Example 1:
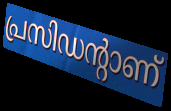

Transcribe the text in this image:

പ്രസിഡന്റാണ്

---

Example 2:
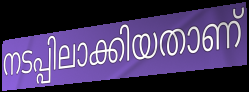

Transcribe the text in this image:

നടപ്പിലാക്കിയതാണ്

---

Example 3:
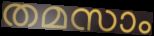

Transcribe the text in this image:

തമസാം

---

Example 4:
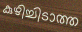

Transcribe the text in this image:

കുഴിച്ചിടാത്ത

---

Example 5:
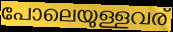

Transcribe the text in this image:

പോലെയുള്ളവര്